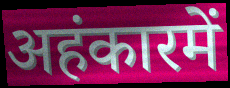
अहंकारमें